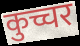
कुच्चर